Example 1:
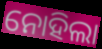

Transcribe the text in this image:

ନୋହିଲା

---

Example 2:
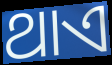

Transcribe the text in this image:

ଥାଏ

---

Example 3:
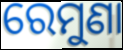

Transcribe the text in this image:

ରେମୁଣା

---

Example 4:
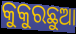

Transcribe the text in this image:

କୁକୁରଛୁଆ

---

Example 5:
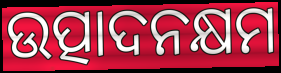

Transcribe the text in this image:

ଉତ୍ପାଦନକ୍ଷମ